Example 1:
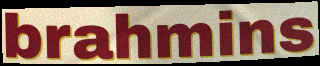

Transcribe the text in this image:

brahmins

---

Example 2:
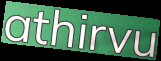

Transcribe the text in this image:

athirvu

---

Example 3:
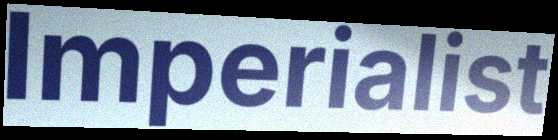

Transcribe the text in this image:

Imperialist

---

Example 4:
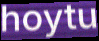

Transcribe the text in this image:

hoytu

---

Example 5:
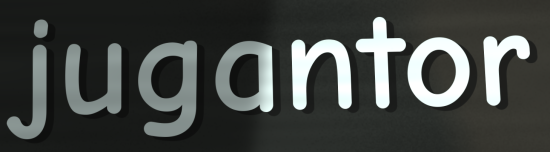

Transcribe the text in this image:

jugantor